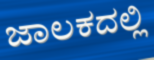
ಜಾಲಕದಲ್ಲಿ